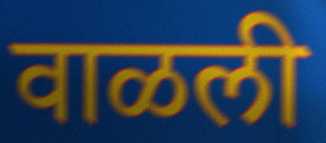
वाळली